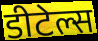
डीटेल्‍स